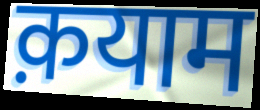
क़याम